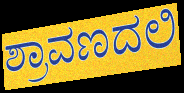
ಶ್ರಾವಣದಲಿ